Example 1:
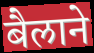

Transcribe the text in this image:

बैलाने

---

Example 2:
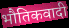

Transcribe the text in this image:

भौतिकवादी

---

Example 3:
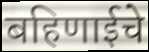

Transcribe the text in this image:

बहिणाईचे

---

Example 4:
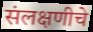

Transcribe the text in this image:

संलक्षणीचे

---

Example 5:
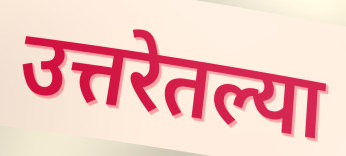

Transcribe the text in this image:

उत्तरेतल्या